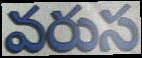
వరుస